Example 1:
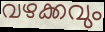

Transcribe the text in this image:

വഴക്കവും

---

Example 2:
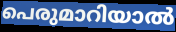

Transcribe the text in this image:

പെരുമാറിയാൽ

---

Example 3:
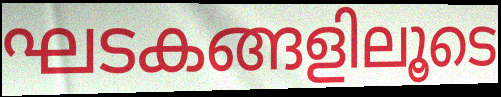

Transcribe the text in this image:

ഘടകങ്ങളിലൂടെ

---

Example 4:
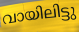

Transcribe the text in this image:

വായിലിട്ടു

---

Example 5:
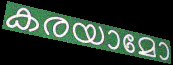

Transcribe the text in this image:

കരയാമോ